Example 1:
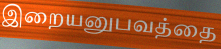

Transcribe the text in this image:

இறையனுபவத்தை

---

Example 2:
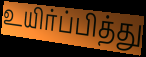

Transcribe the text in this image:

உயிர்ப்பித்து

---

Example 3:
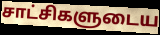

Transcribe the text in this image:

சாட்சிகளுடைய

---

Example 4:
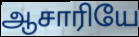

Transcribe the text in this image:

ஆசாரியே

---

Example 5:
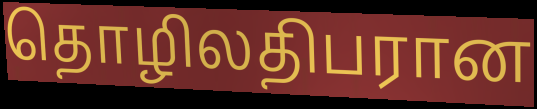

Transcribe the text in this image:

தொழிலதிபரான